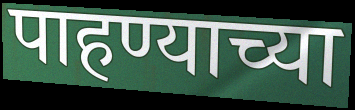
पाहण्याच्या